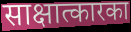
साक्षात्कारका